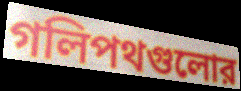
গলিপথগুলোর